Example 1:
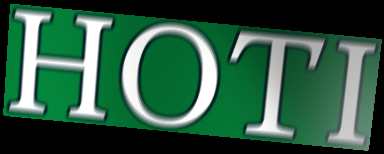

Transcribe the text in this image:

HOTI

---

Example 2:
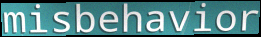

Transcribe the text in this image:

misbehavior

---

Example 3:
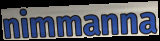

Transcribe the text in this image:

nimmanna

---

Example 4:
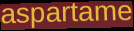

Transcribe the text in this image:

aspartame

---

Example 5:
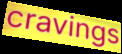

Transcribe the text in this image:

cravings